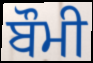
ਬੌਮੀ